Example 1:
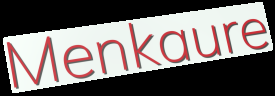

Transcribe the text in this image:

Menkaure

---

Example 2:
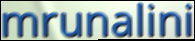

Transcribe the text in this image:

mrunalini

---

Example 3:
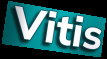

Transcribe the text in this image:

Vitis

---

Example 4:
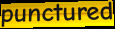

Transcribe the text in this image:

punctured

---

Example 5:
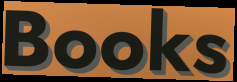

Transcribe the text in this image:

Books